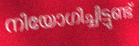
നിയോഗിച്ചിട്ടുണ്ട്